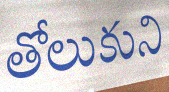
తోలుకుని